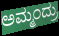
ಅಮ್ಮಂದ್ರು